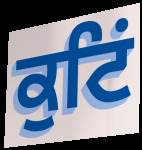
ਕੁਟਿਂ